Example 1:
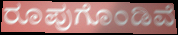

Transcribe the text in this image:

ರೂಪುಗೊಂಡಿವೆ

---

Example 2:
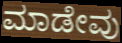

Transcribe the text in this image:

ಮಾಡೇವು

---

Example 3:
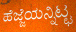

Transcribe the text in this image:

ಹೆಜ್ಜೆಯನ್ನಿಟ್ಟ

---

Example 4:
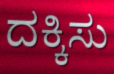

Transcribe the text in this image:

ದಕ್ಕಿಸು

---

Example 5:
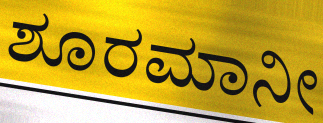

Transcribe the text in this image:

ಶೂರಮಾನೀ